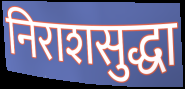
निराशसुद्धा